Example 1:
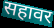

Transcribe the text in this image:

सहावर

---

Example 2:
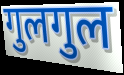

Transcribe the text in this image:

गुलगुल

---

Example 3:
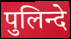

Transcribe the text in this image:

पुलिन्दे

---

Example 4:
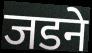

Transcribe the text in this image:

जडने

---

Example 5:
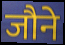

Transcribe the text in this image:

जौने